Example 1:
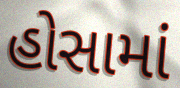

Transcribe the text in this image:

હોસામાં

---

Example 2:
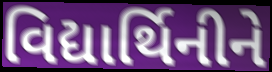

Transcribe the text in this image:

વિદ્યાર્થિનીને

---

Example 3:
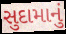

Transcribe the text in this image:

સુદામાનું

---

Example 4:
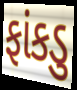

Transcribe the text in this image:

ફાંકડુ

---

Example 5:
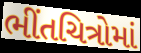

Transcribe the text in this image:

ભીંતચિત્રોમાં